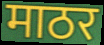
माठर